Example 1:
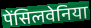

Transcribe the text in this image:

पेंसिलवेनिया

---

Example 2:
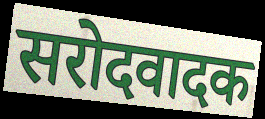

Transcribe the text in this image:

सरोदवादक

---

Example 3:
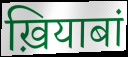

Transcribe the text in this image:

ख़ियाबां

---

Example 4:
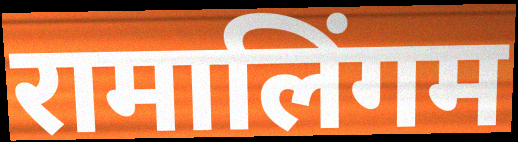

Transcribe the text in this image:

रामालिंगम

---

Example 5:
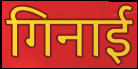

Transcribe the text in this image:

गिनाई